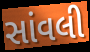
સાંવલી